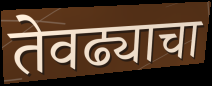
तेवढ्याचा